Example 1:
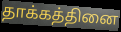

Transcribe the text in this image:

தாக்கத்தினை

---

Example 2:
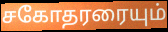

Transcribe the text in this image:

சகோதரரையும்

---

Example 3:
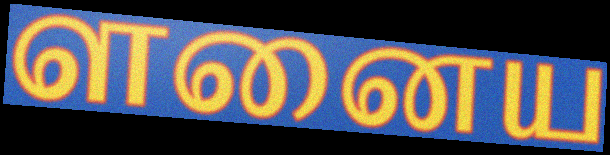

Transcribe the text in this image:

ளனைய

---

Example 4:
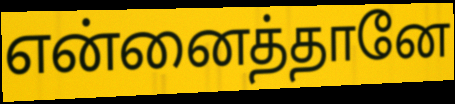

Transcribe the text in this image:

என்னைத்தானே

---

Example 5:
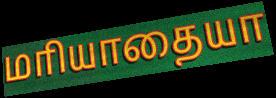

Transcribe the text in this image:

மரியாதையா